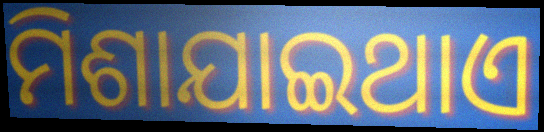
ମିଶାଯାଇଥାଏ